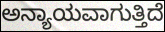
ಅನ್ಯಾಯವಾಗುತ್ತಿದೆ